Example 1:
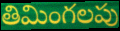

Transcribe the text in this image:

తిమింగలపు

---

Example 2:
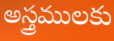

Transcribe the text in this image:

అస్త్రములకు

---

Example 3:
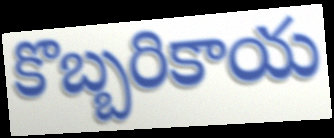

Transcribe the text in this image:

కొబ్బరికాయ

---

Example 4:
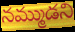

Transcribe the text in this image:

నమ్ముడని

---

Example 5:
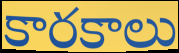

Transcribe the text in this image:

కారకాలు